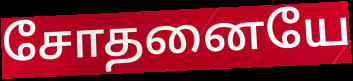
சோதனையே